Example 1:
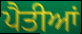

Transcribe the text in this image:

ਪੈਤੀਆਂ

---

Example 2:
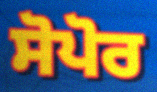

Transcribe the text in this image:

ਸੋਪੋਰ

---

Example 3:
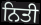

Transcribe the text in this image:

ਨਿਤੀ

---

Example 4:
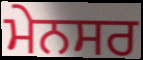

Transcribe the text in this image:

ਮੇਨਸਰ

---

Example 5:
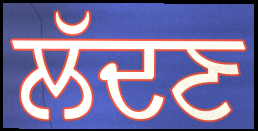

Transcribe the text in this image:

ਲੱਦਣ